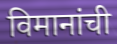
विमानांची